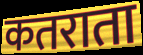
कतराता